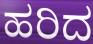
ಹರಿದ